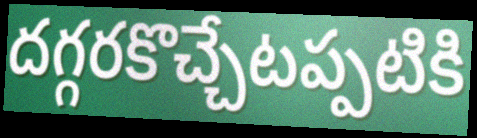
దగ్గరకొచ్చేటప్పటికి